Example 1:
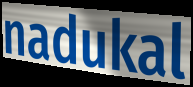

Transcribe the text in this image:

nadukal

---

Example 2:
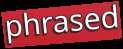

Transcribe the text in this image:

phrased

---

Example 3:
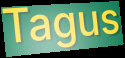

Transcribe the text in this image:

Tagus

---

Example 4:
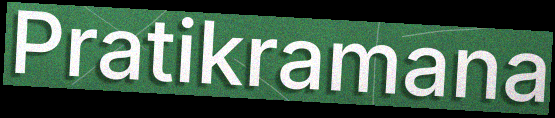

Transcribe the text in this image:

Pratikramana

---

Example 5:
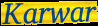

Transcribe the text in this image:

Karwar